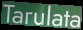
Tarulata